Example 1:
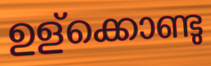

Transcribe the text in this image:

ഉള്ക്കൊണ്ടു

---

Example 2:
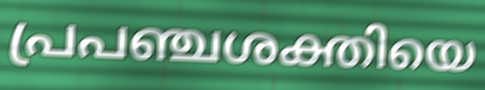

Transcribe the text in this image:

പ്രപഞ്ചശക്തിയെ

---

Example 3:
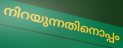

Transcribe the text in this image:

നിറയുന്നതിനൊപ്പം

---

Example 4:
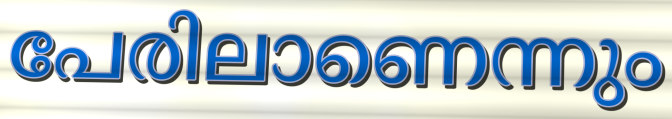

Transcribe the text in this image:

പേരിലാണെന്നും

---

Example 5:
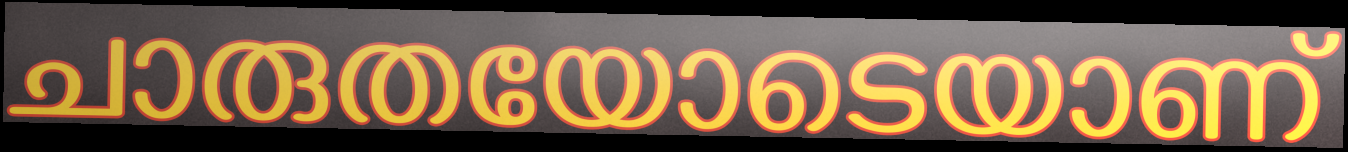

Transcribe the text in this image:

ചാരുതയോടെയാണ്